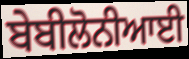
ਬੇਬੀਲੋਨੀਆਈ